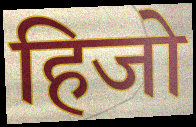
हिजो